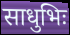
साधुभिः